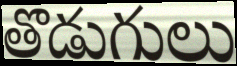
తొడుగులు